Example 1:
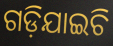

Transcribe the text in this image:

ଗଡ଼ିଯାଇଚି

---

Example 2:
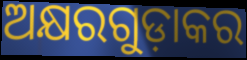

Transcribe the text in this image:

ଅକ୍ଷରଗୁଡ଼ାକର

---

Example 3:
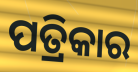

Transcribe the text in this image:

ପତ୍ରିକାର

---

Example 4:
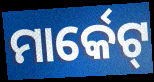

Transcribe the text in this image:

ମାର୍କେଟ୍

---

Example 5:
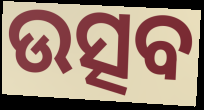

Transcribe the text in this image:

ଉତ୍ସବ